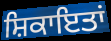
ਸ਼ਿਕਾਇਤਾਂ